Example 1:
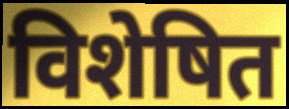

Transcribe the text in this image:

विशेषित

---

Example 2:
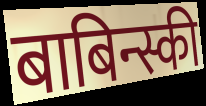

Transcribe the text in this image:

बाबिन्स्की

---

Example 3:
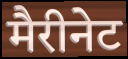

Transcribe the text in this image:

मैरीनेट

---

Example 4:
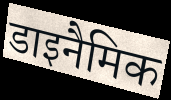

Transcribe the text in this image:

डाइनैमिक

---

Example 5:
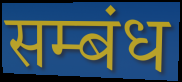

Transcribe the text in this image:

सम्बंध